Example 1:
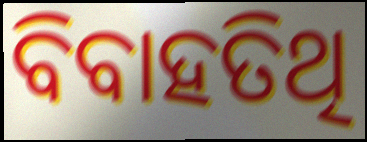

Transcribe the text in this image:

ବିବାହତିଥି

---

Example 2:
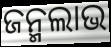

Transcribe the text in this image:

ଜନ୍ମଲାଭ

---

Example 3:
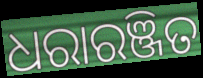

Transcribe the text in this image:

ଧରାରଞ୍ଜିତ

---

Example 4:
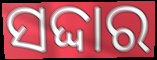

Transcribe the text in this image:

ସଦ୍ଦାର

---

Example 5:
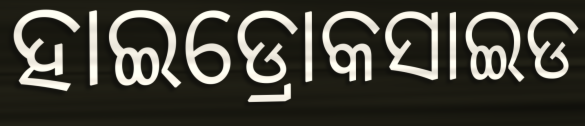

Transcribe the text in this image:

ହାଇଡ୍ରୋକସାଇଡ